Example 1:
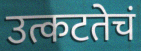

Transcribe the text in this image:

उत्कटतेचं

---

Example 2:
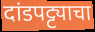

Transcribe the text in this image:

दांडपट्ट्याचा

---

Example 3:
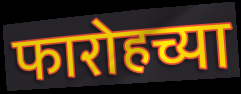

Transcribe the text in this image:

फारोहच्या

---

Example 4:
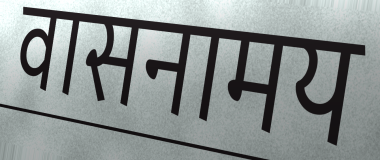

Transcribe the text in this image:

वासनामय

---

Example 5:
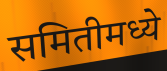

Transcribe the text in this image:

समितीमध्ये